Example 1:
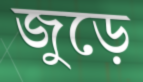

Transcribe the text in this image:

জুড়ে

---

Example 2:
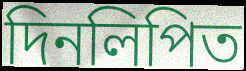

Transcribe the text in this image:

দিনলিপিত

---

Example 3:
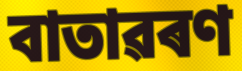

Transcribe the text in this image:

বাতাৱৰণ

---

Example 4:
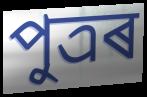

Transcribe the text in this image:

পুত্ৰৰ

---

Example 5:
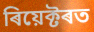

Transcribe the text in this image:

ৰিয়েক্টৰত